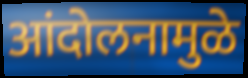
आंदोलनामुळे